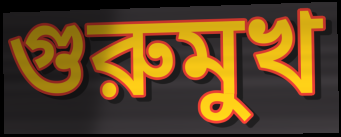
গুরুমুখ